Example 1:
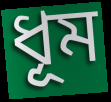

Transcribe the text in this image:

ধূম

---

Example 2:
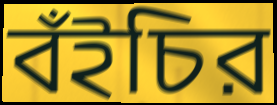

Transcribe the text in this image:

বঁইচির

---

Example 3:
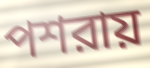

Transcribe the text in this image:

পশরায়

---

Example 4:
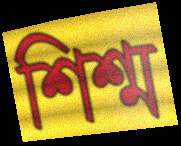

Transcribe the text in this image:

শিশ্ম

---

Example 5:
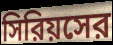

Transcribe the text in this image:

সিরিয়সের